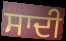
ਸਾਦੀ